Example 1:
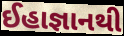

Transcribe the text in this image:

ઈહાજ્ઞાનથી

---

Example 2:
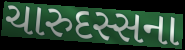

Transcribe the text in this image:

ચારુદસ્સના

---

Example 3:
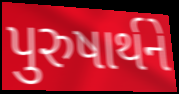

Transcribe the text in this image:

પુરુષાર્થને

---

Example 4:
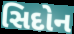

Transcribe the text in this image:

સિદોન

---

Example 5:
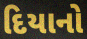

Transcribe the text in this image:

દિયાનો